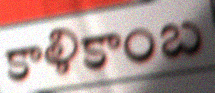
కాళికాంబ